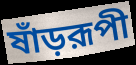
ষাঁড়রূপী